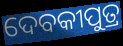
ଦେବକୀପୁତ୍ର